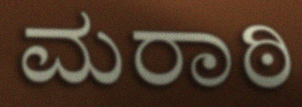
ಮರಾಠಿ